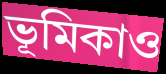
ভূমিকাও